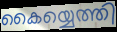
കൈയ്യെത്തി